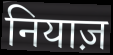
नियाज़